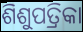
ଶିଶୁପତ୍ରିକା